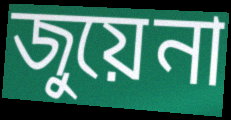
জুয়েনা